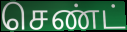
செண்ட்